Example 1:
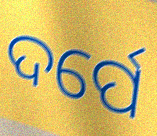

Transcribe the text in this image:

ଦର୍ପେ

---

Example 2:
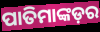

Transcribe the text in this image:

ପାତିମାଙ୍କଡ଼ର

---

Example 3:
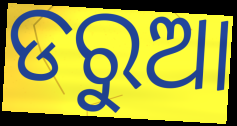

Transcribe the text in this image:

ଡରୁଆ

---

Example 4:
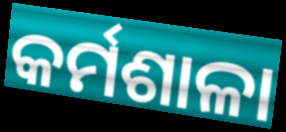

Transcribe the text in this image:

କର୍ମଶାଳା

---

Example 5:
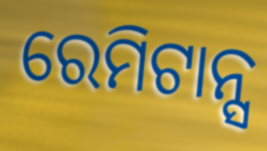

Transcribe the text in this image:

ରେମିଟାନ୍ସ